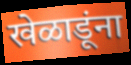
खेळाडूंना